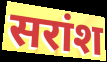
सरांश